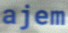
ajem